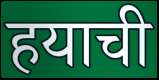
हयाची